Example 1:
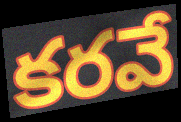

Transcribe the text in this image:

కరవే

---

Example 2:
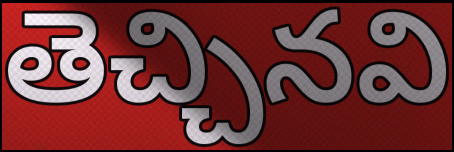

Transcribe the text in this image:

తెచ్చినవి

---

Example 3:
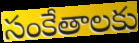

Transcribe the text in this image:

సంకేతాలకు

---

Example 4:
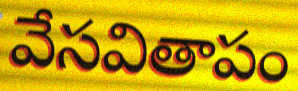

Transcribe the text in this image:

వేసవితాపం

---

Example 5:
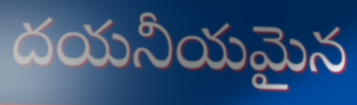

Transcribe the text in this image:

దయనీయమైన